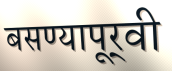
बसण्यापूर्वी